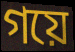
গয়ে